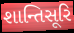
શાન્તિસૂરિ